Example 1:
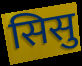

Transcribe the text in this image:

सिसु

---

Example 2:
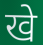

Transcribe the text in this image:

खे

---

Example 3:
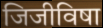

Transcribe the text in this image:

जिजीविषा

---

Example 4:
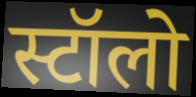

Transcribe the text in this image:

स्टॉलो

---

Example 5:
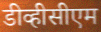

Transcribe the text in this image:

डीव्हीसीएम